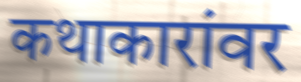
कथाकारांवर